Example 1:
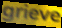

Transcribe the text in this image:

grieve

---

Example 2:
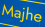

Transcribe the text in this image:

Majhe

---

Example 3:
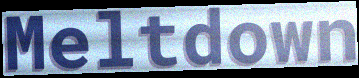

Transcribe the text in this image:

Meltdown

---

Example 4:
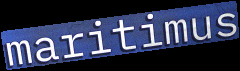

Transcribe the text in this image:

maritimus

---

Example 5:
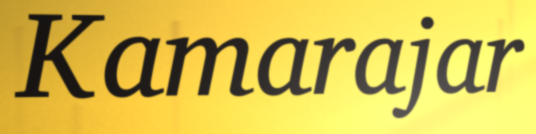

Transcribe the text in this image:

Kamarajar